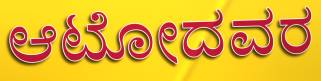
ಆಟೋದವರ